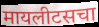
मायलीटसचा